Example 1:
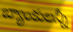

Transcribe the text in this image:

బ్యాంకులన్నీ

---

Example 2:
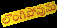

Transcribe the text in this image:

లొంగిపోవును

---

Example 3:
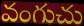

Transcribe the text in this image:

వంగుచు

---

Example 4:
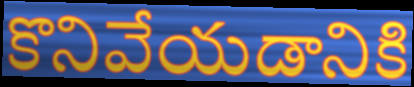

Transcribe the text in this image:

కొనివేయడానికి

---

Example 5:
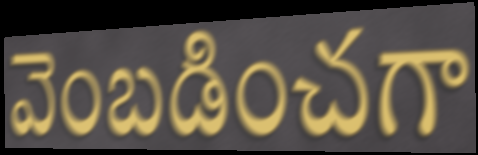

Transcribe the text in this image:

వెంబడించగా